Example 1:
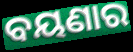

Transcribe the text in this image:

ବୟଣାର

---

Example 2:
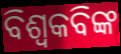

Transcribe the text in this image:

ବିଶ୍ୱକବିଙ୍କ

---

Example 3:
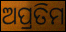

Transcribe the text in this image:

ଅପ୍ରତିମ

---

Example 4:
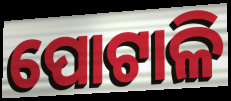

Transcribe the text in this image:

ପୋଟାଳି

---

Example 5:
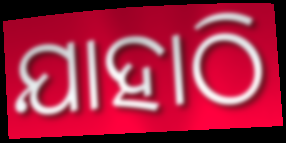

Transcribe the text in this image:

ଯାହାଠି